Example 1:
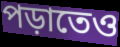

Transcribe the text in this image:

পড়াতেও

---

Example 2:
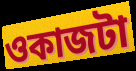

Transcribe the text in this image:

ওকাজটা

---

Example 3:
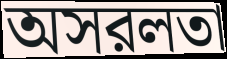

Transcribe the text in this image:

অসরলতা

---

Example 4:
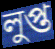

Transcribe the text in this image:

লুপ্ত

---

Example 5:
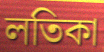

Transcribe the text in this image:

লতিকা